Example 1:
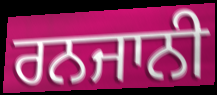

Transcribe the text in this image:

ਰਨਜਾਨੀ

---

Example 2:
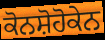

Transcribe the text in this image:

ਕੋਨਸ਼ੋਹੋਕੇਨ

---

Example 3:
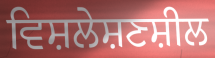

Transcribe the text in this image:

ਵਿਸ਼ਲੇਸ਼ਣਸ਼ੀਲ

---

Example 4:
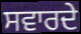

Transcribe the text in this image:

ਸਵਾਰਦੇ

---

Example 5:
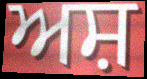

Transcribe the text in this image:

ਅਸ਼